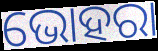
ଭୋହରା